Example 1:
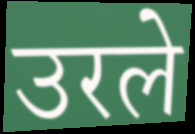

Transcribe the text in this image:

उरले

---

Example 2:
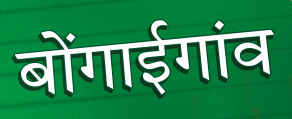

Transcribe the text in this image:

बोंगाईगांव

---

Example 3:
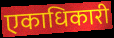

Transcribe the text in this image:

एकाधिकारी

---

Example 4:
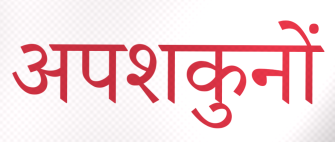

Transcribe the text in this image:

अपशकुनों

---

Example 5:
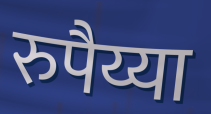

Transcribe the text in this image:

रुपैय्या